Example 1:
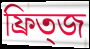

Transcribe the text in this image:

ফ্রিত্জ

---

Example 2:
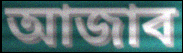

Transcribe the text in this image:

আজাব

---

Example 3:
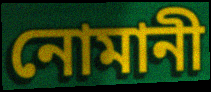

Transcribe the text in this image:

নোমানী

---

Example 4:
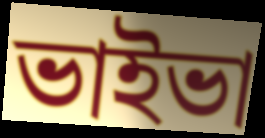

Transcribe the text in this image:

ভাইভা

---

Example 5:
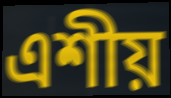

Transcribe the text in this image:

এশীয়